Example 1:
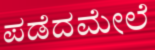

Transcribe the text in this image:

ಪಡೆದಮೇಲೆ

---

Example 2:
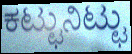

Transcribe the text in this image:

ಕಟ್ಟುನಿಟ್ಟು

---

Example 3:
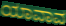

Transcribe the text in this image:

ಯಾವಾವ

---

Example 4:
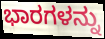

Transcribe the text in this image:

ಭಾರಗಳನ್ನು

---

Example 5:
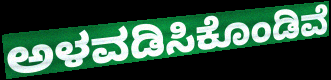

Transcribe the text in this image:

ಅಳವಡಿಸಿಕೊಂಡಿವೆ